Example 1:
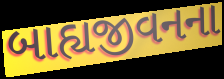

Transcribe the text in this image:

બાહ્યજીવનના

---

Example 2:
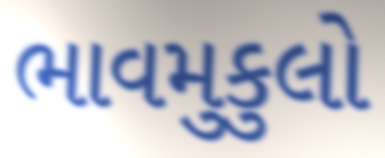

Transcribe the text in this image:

ભાવમુકુલો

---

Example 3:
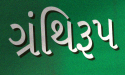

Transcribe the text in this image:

ગ્રંથિરૂપ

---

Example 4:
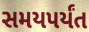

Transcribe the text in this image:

સમયપર્યંત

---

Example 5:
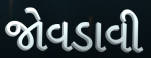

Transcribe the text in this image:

જોવડાવી